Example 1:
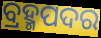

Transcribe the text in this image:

ବ୍ରହ୍ମପଦର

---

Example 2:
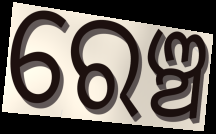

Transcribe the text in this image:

ରେଞ୍ଚ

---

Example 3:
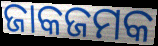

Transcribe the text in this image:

ଜାକଜମକ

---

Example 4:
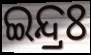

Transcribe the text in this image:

ଇନ୍ଦ୍ରଃ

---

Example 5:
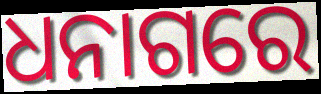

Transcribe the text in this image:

ଧନାଗରେ